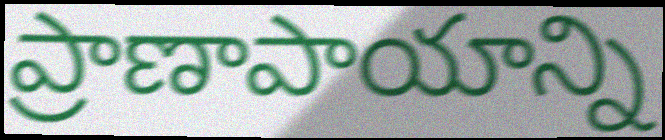
ప్రాణాపాయాన్ని